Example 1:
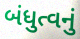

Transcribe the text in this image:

બંધુત્વનું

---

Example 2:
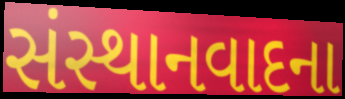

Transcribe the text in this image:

સંસ્થાનવાદના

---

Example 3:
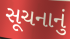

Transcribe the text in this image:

સૂચનાનું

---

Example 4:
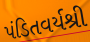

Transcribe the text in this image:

પંડિતવર્યશ્રી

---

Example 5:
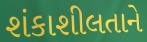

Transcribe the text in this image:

શંકાશીલતાને